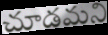
చూడమని